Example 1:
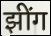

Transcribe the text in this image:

झींग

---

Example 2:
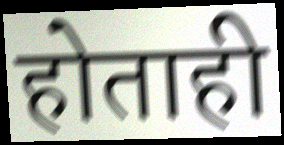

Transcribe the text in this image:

होताही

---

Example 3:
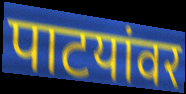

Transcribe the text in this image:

पाटयांवर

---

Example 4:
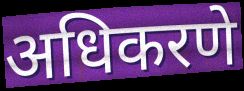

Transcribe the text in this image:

अधिकरणे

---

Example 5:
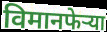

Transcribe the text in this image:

विमानफेऱ्या